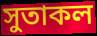
সুতাকল